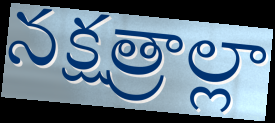
నక్షత్రాల్లా